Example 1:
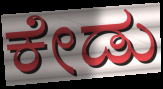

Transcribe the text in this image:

ಕೇಡು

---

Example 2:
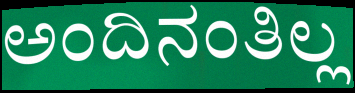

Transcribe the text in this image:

ಅಂದಿನಂತಿಲ್ಲ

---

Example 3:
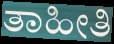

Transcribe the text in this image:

ತಾಹೀತಿ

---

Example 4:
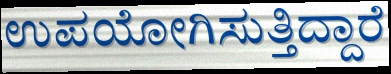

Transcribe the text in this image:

ಉಪಯೋಗಿಸುತ್ತಿದ್ದಾರೆ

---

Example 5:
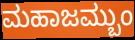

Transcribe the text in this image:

ಮಹಾಜಮ್ಬುಂ